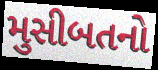
મુસીબતનો